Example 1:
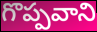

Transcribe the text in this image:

గొప్పవాని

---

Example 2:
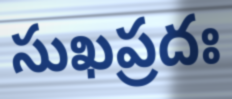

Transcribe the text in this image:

సుఖప్రదః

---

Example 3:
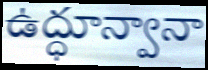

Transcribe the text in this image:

ఉద్ధూన్వానా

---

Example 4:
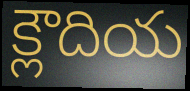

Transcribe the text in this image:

క్లౌదియ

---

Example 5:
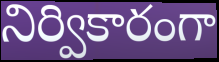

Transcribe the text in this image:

నిర్వికారంగా